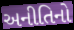
અનીતિનો